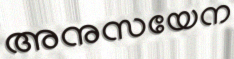
അനുസയേന